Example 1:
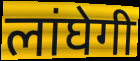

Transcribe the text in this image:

लांघेगी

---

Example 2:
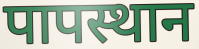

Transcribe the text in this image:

पापस्थान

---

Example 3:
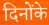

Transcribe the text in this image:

दिनोंके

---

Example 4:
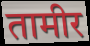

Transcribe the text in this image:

तामीर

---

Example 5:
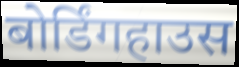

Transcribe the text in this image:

बोर्डिंगहाउस